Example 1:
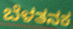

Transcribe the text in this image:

ಬೆಳತನಕ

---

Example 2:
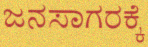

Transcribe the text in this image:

ಜನಸಾಗರಕ್ಕೆ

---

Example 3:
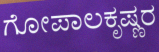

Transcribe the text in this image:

ಗೋಪಾಲಕೃಷ್ಣರ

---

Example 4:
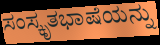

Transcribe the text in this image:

ಸಂಸ್ಕೃತಭಾಷೆಯನ್ನು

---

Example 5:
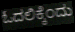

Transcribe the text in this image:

ಓದಲಿಕ್ಕೆಂದು